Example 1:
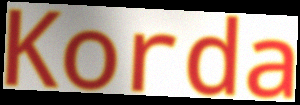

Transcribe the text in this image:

Korda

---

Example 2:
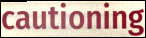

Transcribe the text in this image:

cautioning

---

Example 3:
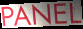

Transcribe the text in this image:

PANEL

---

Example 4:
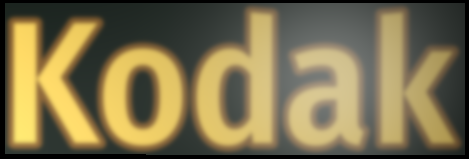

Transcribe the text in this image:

Kodak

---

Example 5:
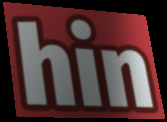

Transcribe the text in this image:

hin